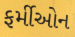
ફર્મીઓન